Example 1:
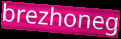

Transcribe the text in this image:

brezhoneg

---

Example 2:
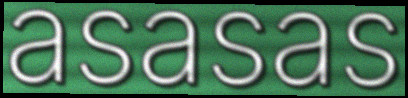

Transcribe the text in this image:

asasas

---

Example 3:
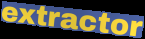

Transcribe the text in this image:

extractor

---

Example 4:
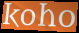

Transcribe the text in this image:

koho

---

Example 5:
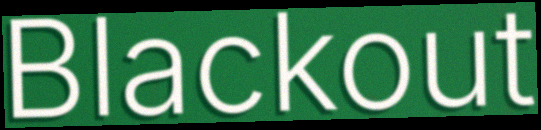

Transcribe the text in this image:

Blackout